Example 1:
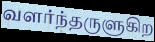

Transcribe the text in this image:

வளர்ந்தருளுகிற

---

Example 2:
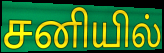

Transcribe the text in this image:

சனியில்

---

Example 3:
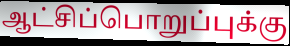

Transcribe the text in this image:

ஆட்சிப்பொறுப்புக்கு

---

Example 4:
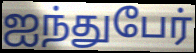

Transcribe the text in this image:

ஐந்துபேர்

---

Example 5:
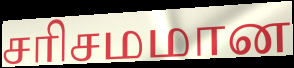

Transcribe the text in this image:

சரிசமமான